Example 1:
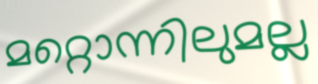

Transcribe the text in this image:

മറ്റൊന്നിലുമല്ല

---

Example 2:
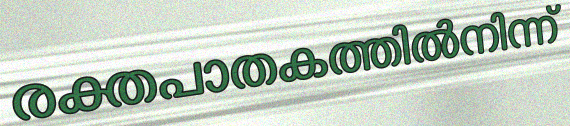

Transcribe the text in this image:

രക്തപാതകത്തിൽനിന്ന്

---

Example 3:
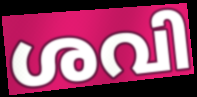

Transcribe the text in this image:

ശവി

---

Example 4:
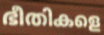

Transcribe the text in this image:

ഭീതികളെ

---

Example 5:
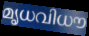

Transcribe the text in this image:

മൃധവിധൗ